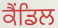
ਕੈਂਡਿਲ